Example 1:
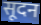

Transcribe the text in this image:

सूदन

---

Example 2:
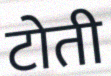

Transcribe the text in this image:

टोती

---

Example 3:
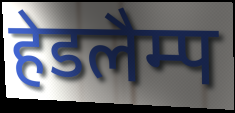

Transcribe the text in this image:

हेडलैम्प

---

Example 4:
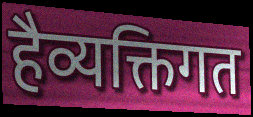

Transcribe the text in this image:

हैव्यक्तिगत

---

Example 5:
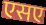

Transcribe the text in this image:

एसए